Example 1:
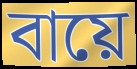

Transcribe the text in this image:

বায়ে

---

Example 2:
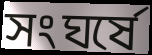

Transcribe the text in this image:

সংঘর্ষে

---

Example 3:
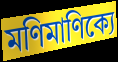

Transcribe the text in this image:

মণিমাণিক্যে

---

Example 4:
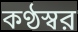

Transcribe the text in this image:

কণ্ঠস্বর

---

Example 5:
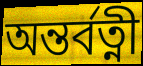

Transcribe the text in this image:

অন্তর্বত্নী